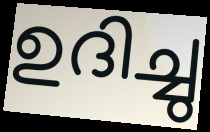
ഉദിച്ചു